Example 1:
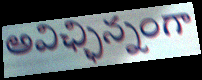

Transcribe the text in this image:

అవిఛ్ఛిన్నంగా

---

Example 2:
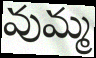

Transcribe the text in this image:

వుమ్మ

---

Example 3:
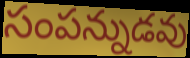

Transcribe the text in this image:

సంపన్నుడవు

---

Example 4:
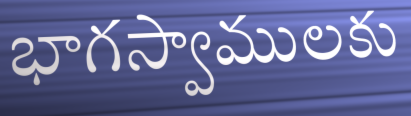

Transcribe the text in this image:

భాగస్వాములకు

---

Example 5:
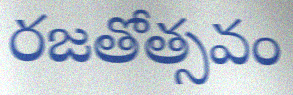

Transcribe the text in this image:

రజతోత్సవం